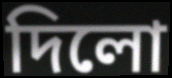
দিলো